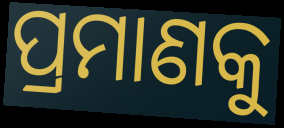
ପ୍ରମାଣକୁ